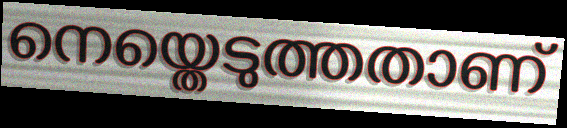
നെയ്തെടുത്തതാണ്